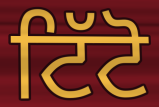
ਟਿੱਟੋ